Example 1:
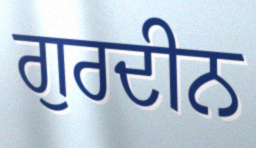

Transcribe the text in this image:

ਗੁਰਦੀਨ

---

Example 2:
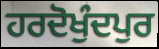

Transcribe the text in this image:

ਹਰਦੋਖੁੰਦਪੁਰ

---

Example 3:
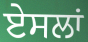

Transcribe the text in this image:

ਏਸਲਾਂ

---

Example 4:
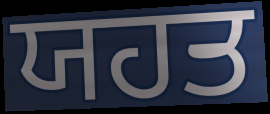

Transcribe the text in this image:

ਯਹਤ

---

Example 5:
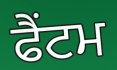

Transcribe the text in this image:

ਫੈਂਟਮ